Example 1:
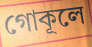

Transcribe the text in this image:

গোকূলে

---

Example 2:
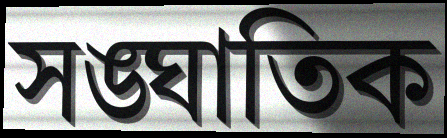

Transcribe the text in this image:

সঙ্ঘাতিক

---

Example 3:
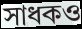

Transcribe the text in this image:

সাধকও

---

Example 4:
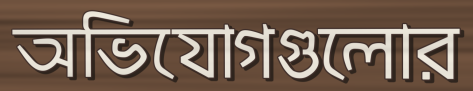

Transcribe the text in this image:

অভিযোগগুলোর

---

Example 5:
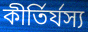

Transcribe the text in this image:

কীর্তির্যস্য